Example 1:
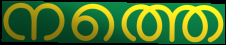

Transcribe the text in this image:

നത്തെ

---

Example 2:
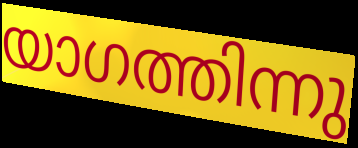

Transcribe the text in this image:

യാഗത്തിന്നു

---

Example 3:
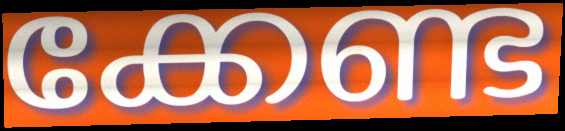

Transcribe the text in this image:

ക്കേണ്ട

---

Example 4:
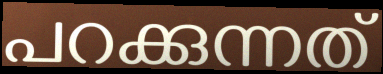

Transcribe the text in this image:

പറക്കുന്നത്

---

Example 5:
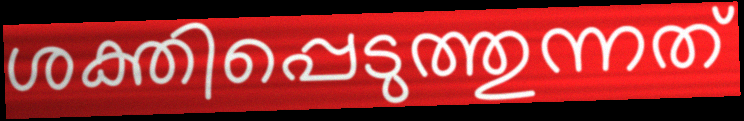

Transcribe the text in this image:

ശക്തിപ്പെടുത്തുന്നത്